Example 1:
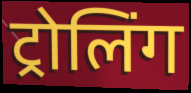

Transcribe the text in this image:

ट्रोलिंग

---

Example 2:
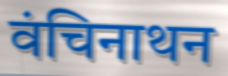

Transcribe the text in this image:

वंचिनाथन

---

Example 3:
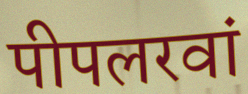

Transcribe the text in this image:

पीपलरवां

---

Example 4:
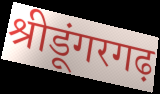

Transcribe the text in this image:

श्रीडूंगरगढ़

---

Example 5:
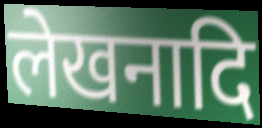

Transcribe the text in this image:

लेखनादि